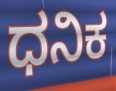
ಧನಿಕ